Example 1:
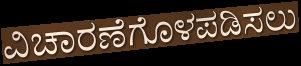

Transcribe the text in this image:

ವಿಚಾರಣೆಗೊಳಪಡಿಸಲು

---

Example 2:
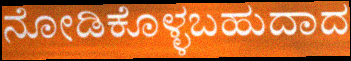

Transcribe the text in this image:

ನೋಡಿಕೊಳ್ಳಬಹುದಾದ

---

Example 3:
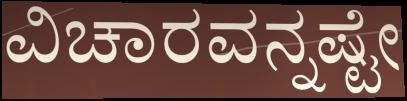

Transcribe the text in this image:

ವಿಚಾರವನ್ನಷ್ಟೇ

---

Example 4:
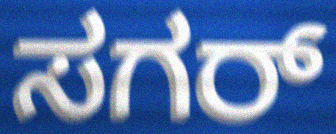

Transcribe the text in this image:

ಸಗರ್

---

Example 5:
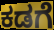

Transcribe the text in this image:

ಕಡಗೆ